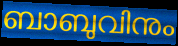
ബാബുവിനും